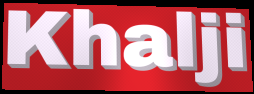
Khalji